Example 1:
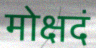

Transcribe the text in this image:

मोक्षदं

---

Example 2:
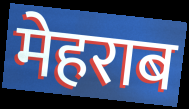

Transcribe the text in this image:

मेहराब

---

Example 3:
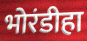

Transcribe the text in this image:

भोरंडीहा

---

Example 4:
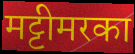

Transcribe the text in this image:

मट्टीमरका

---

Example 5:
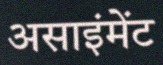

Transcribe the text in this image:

असाइंमेंट